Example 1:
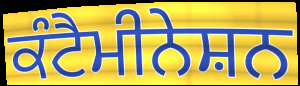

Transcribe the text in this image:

ਕੰਟੈਮੀਨੇਸ਼ਨ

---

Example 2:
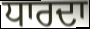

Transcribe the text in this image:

ਧਾਰਦਾ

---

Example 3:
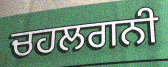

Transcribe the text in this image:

ਚਹਲਗਨੀ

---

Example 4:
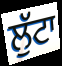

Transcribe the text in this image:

ਲੁੱਟਾ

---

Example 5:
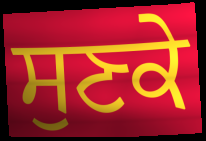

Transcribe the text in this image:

ਸੁਣਕੇ